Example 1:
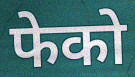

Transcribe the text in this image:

फेको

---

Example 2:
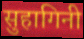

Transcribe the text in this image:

सुहागिनी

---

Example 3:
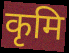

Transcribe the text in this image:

कृमि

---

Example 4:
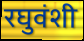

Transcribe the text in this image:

रघुवंशी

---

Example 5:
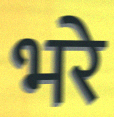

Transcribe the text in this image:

भरे